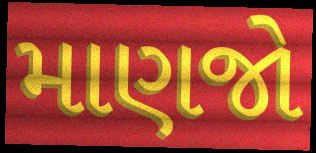
માણજો